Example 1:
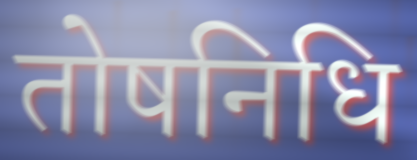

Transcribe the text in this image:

तोषनिधि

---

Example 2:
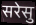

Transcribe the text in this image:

सरेसु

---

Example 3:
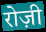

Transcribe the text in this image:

रोज़ी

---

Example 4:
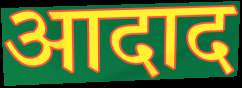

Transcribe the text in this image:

आदाद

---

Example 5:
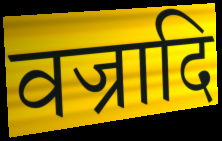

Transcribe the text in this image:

वज्रादि